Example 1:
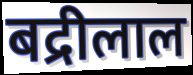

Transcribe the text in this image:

बद्रीलाल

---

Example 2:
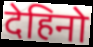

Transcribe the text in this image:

देहिनो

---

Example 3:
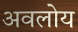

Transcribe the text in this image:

अवलोय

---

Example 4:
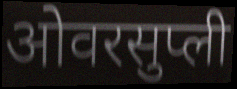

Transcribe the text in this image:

ओवरसुप्ली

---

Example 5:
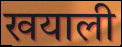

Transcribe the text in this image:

खयाली